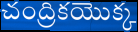
చంద్రికయొక్క